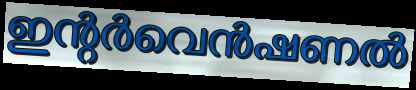
ഇന്റർവെൻഷണൽ